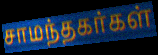
சாமந்தகர்கள்